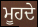
ਮੂਹਦੇ